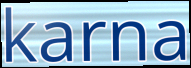
karna